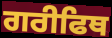
ਗਰੀਫਿਥ